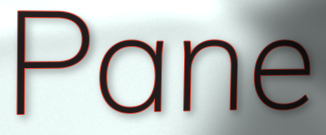
Pane